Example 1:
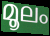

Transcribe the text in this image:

മൂലം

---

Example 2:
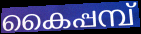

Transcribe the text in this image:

കൈപ്പമ്പ്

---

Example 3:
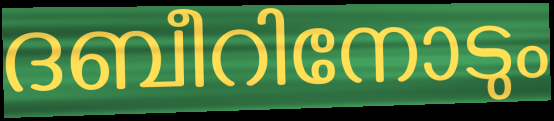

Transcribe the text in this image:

ദബീറിനോടും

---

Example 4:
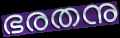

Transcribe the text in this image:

ഭരതനു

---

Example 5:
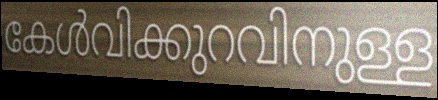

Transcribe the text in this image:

കേൾവിക്കുറവിനുള്ള